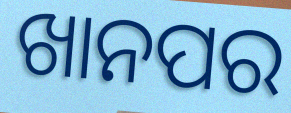
ଖାନପର